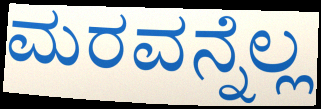
ಮರವನ್ನೆಲ್ಲ